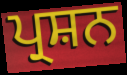
ਪ੍ਰਸ਼ਨ